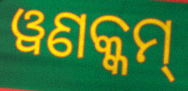
ୱଣକ୍କମ୍